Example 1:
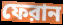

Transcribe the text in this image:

ফেরান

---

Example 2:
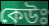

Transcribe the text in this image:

কেউঃ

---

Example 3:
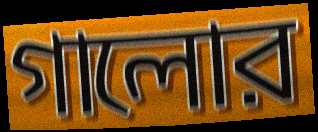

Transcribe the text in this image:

গালোর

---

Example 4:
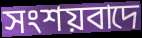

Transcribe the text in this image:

সংশয়বাদে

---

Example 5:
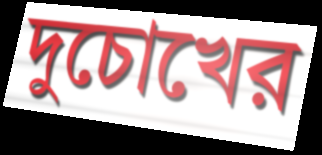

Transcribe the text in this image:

দুচোখের